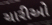
ચારીઓ